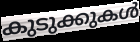
കുടുക്കുകൾ